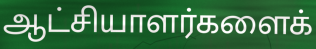
ஆட்சியாளர்களைக்